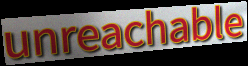
unreachable